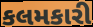
કલમકારી